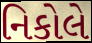
નિકોલે